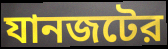
যানজটের